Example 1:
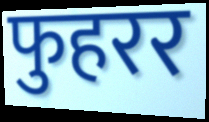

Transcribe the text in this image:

फुहरर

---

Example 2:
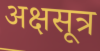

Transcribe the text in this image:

अक्षसूत्र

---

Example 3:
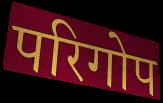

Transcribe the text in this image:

परिगोप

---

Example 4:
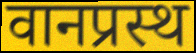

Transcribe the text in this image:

वानप्रस्थ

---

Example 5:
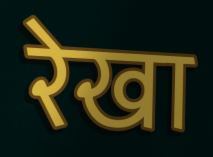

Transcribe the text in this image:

रेखा